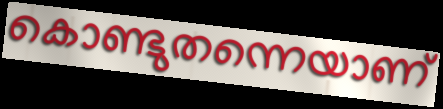
കൊണ്ടുതന്നെയാണ്